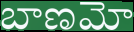
బాణమో